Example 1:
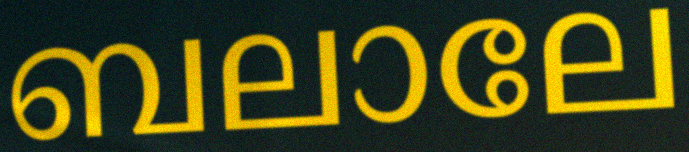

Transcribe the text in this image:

ബലാലേ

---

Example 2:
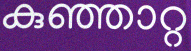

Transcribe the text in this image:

കുഞ്ഞാറ്റ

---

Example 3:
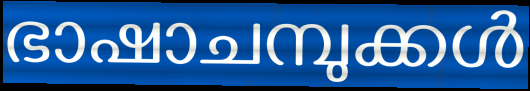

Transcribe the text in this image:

ഭാഷാചമ്പുക്കൾ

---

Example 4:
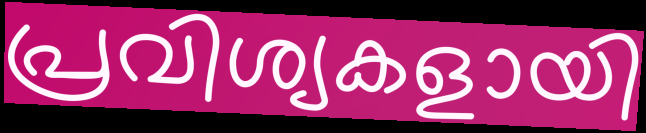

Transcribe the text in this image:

പ്രവിശ്യകളായി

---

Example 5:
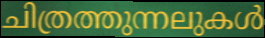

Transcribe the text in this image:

ചിത്രത്തുന്നലുകൾ